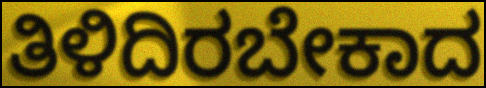
ತಿಳಿದಿರಬೇಕಾದ